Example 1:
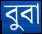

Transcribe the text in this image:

বুবা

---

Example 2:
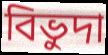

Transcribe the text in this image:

বিভুদা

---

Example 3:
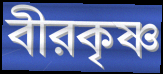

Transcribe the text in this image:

বীরকৃষ্ণ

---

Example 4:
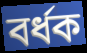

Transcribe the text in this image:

বর্ধক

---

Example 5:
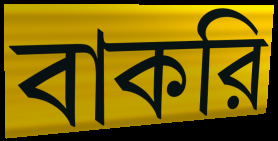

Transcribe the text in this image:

বাকরি